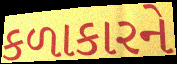
કળાકારને